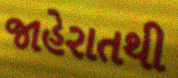
જાહેરાતથી